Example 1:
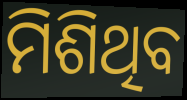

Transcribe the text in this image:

ମିଶିଥିବ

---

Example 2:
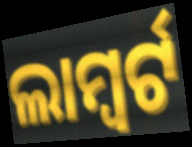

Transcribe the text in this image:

ଲାମ୍ବର୍ଟ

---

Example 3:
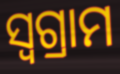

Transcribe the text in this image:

ସ୍ୱଗ୍ରାମ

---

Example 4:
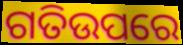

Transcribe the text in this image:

ଗତିଉପରେ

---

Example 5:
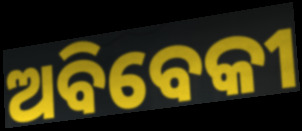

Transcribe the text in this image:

ଅବିବେକୀ